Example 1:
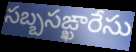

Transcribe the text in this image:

సబ్బసఙ్ఖారేసు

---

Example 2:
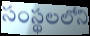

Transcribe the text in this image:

సంస్థలలోని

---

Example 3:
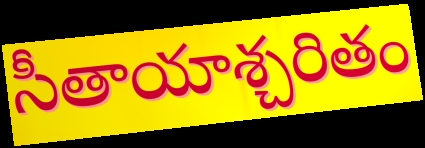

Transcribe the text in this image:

సీతాయాశ్చరితం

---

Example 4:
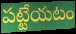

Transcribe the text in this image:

పట్టేయటం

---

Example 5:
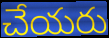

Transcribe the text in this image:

చేయరు